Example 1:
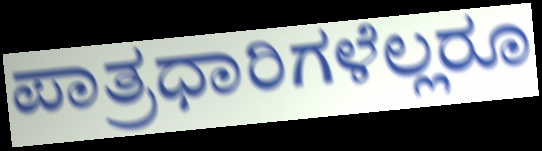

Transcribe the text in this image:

ಪಾತ್ರಧಾರಿಗಳೆಲ್ಲರೂ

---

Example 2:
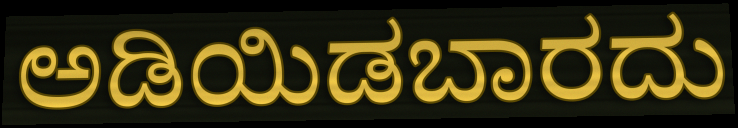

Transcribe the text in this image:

ಅಡಿಯಿಡಬಾರದು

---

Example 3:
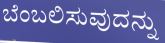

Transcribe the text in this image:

ಬೆಂಬಲಿಸುವುದನ್ನು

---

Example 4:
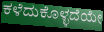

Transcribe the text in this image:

ಕಳೆದುಕೊಳ್ಳದೆಯೇ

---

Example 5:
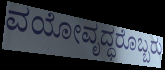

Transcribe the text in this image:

ವಯೋವೃದ್ಧರೊಬ್ಬರು